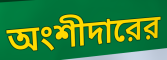
অংশীদারের